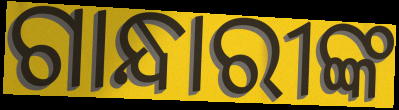
ଗାନ୍ଧାରୀଙ୍କ